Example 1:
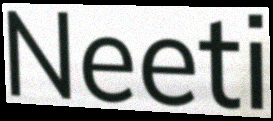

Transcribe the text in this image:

Neeti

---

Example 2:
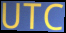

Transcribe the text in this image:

UTC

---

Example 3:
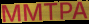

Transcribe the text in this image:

MMTPA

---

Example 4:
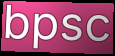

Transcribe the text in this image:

bpsc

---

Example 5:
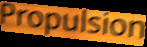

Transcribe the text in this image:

Propulsion